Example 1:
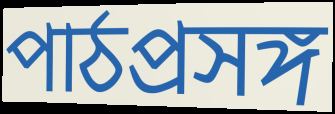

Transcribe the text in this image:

পাঠপ্রসঙ্গ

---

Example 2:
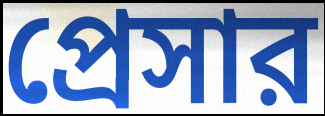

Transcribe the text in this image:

প্রেসার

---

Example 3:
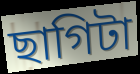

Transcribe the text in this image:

ছাগিটা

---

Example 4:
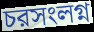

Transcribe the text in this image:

চরসংলগ্ন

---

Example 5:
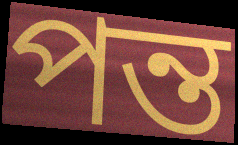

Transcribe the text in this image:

পন্ত